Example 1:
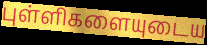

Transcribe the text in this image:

புள்ளிகளையுடைய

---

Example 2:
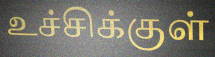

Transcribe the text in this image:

உச்சிக்குள்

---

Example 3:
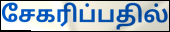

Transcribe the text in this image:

சேகரிப்பதில்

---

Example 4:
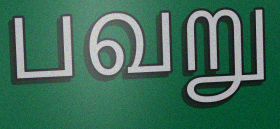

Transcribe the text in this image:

பவறு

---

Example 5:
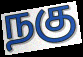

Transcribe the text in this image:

நகு